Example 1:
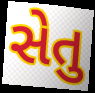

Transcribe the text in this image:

સેતુ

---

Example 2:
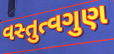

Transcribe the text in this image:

વસ્તુત્વગુણ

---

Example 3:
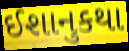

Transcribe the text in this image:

ઈશાનુકથા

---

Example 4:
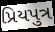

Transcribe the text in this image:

પ્રિયપુત્ર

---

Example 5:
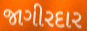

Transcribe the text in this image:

જાગીરદાર